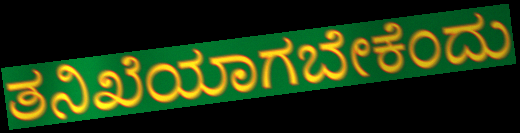
ತನಿಖೆಯಾಗಬೇಕೆಂದು